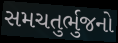
સમચતુર્ભુજનો